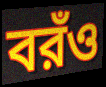
বরঁও